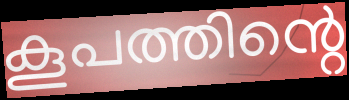
കൂപത്തിന്റെ